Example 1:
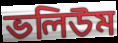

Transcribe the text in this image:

ভলিউম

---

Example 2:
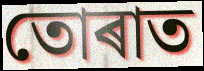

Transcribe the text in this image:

তোৰাত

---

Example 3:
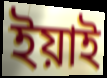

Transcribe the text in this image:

ইয়াই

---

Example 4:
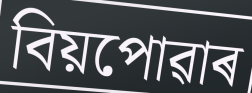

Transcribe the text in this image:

বিয়পোৱাৰ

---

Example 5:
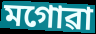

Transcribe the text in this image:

মগোৱা